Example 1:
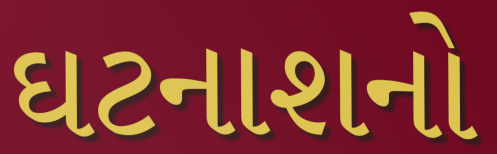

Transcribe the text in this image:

ઘટનાશનો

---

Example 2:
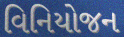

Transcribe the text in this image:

વિનિયોજન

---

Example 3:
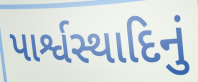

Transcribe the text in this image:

પાર્શ્વસ્થાદિનું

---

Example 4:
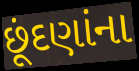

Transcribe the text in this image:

છૂંદણાંના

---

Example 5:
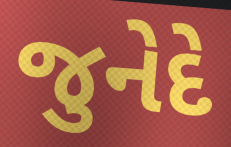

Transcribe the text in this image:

જુનેદે